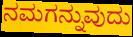
ನಮಗನ್ನುವುದು